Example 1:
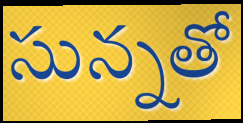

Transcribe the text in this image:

సున్నతో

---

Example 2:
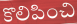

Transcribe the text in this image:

కొలిపించి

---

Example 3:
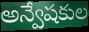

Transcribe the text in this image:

అన్వేషకుల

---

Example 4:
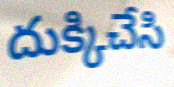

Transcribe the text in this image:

దుక్కిచేసి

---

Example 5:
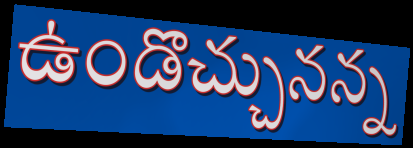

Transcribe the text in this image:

ఉండొచ్చునన్న